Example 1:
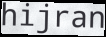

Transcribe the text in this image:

hijran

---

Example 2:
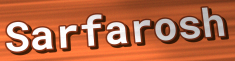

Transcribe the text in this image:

Sarfarosh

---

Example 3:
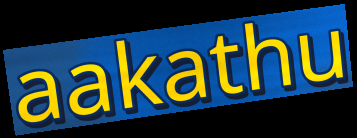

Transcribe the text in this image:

aakathu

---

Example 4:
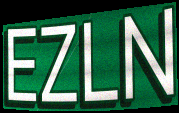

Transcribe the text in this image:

EZLN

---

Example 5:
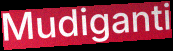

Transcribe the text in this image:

Mudiganti